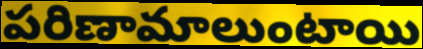
పరిణామాలుంటాయి